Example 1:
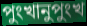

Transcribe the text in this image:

পুংখানুপুংখ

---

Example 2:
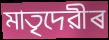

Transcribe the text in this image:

মাতৃদেৱীৰ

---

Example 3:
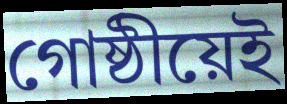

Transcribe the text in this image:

গোষ্ঠীয়েই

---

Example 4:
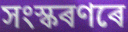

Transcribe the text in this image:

সংস্কৰণৰে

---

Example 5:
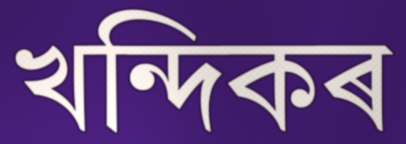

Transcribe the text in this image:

খন্দিকৰ